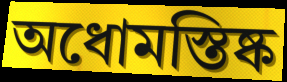
অধোমস্তিষ্ক